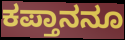
ಕಪ್ತಾನನೂ